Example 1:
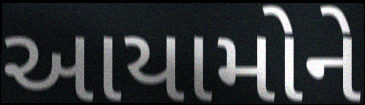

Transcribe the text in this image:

આયામોને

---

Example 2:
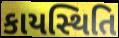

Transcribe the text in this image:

કાયસ્થિતિ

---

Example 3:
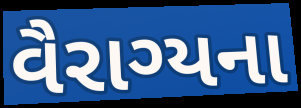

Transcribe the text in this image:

વૈરાગ્યના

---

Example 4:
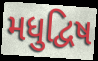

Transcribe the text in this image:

મધુદ્વિષ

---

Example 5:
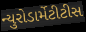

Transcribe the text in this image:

ન્યુરોડાર્મેટીટીસ